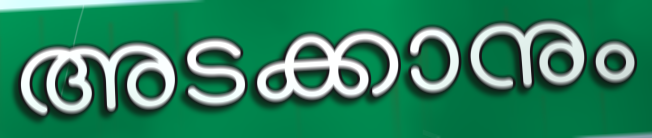
അടക്കാനും